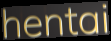
hentai